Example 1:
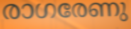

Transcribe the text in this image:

രാഗരേണു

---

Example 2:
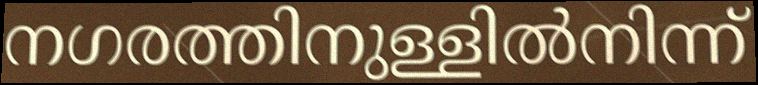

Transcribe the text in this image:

നഗരത്തിനുള്ളിൽനിന്ന്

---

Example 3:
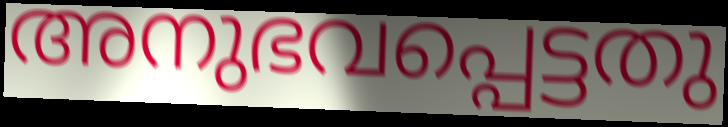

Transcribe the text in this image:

അനുഭവപ്പെട്ടതു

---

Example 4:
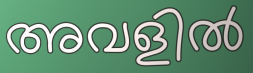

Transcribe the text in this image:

അവളിൽ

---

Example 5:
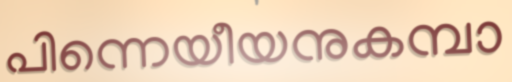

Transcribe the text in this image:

പിന്നെയീയനുകമ്പാ